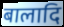
बालादि